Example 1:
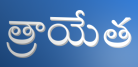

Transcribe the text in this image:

త్రాయేత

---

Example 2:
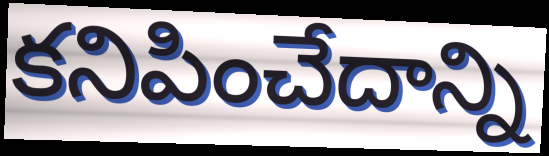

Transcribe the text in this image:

కనిపించేదాన్ని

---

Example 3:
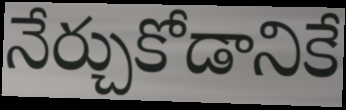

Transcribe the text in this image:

నేర్చుకోడానికే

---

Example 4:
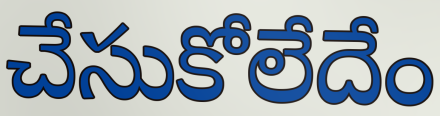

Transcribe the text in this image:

చేసుకోలేదేం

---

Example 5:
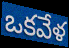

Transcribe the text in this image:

ఒకవేళ